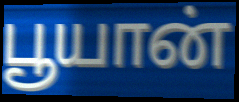
பூயான்